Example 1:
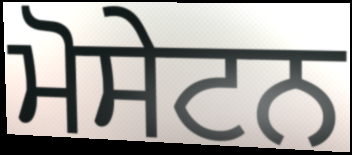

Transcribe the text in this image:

ਮੋਸੇਟਨ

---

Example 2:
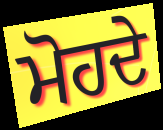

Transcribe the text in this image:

ਮੋਹਦੇ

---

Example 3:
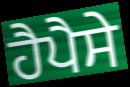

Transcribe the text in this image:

ਹੈਪੈਸੇ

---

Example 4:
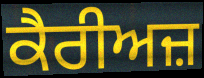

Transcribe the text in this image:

ਕੈਰੀਅਜ਼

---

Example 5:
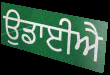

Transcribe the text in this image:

ਉਡਾਈਐ